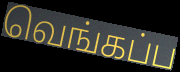
வெங்கப்ப